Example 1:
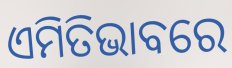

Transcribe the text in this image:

ଏମିତିଭାବରେ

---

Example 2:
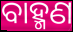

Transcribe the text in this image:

ବାହ୍ମଣ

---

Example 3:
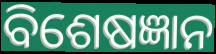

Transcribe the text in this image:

ବିଶେଷଜ୍ଞାନ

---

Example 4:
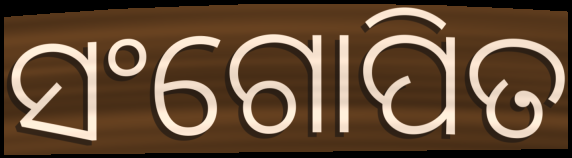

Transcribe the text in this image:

ସଂଗୋପିତ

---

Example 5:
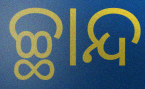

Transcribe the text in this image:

ଚ୍ଛାନ୍ଦ